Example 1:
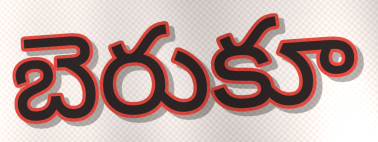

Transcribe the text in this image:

బెరుకూ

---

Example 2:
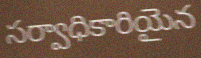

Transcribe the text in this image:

సర్వాధికారియైన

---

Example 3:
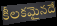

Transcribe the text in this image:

కీలకమైనదే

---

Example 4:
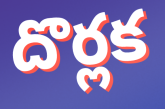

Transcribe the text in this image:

దొర్లక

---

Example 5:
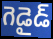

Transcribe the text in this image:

గెడైడ్